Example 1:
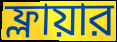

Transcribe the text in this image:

ফ্লায়ার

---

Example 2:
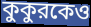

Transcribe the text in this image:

কুকুরকেও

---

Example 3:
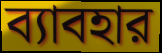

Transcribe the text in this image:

ব্যাবহার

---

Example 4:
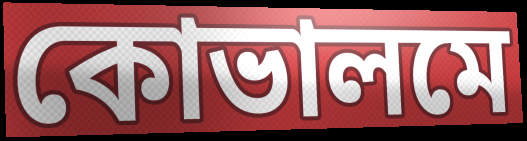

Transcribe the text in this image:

কোভালমে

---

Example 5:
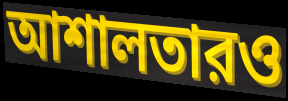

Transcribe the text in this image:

আশালতারও